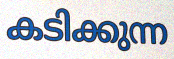
കടിക്കുന്ന